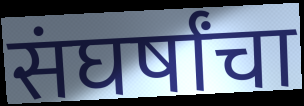
संघर्षांचा